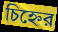
চিহ্নের